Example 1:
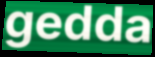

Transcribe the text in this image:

gedda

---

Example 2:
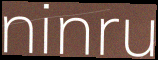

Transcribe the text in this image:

ninru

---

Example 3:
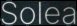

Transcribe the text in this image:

Solea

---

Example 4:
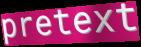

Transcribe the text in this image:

pretext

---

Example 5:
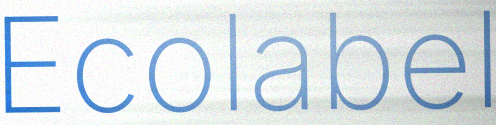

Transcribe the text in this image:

Ecolabel